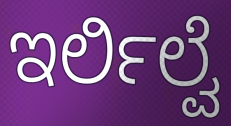
ಇರ್ಲಿಲ್ವೆ